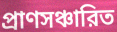
প্রাণসঞ্চারিত